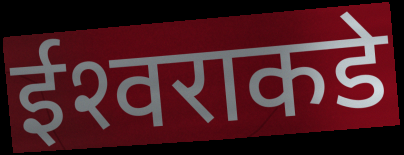
ईश्वराकडे